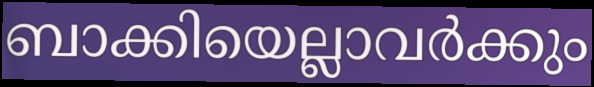
ബാക്കിയെല്ലാവർക്കും